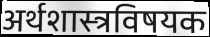
अर्थशास्त्रविषयक